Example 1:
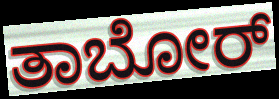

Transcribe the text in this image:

ತಾಬೋರ್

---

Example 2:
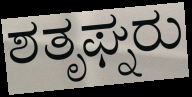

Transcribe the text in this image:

ಶತೃಘ್ನರು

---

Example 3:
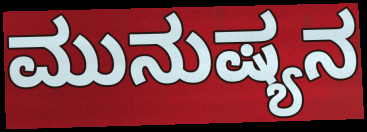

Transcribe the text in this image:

ಮುನುಷ್ಯನ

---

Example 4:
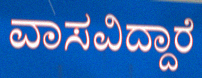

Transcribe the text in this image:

ವಾಸವಿದ್ದಾರೆ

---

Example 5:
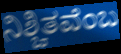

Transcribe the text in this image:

ನಿಶ್ಚಿತವೆಂಬ